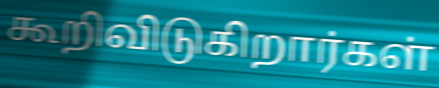
கூறிவிடுகிறார்கள்